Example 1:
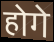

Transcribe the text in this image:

होगे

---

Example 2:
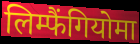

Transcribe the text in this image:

लिम्फैंगियोमा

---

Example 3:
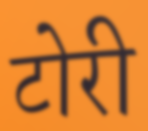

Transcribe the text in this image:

टोरी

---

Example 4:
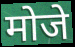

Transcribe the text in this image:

मोजे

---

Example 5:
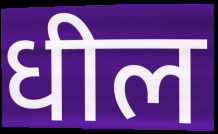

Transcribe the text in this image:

धील